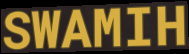
SWAMIH